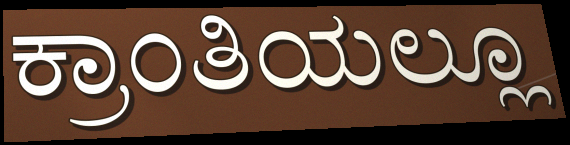
ಕ್ರಾಂತಿಯಲ್ಲೂ